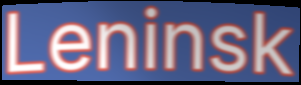
Leninsk